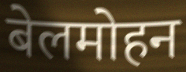
बेलमोहन